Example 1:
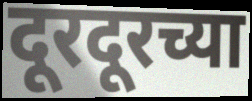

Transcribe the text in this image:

दूरदूरच्या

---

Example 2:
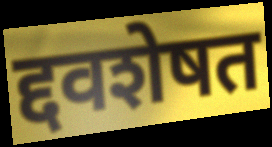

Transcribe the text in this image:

द्दवशेषत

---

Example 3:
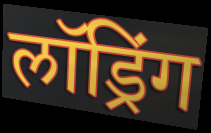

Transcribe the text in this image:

लॉड्रिंग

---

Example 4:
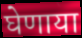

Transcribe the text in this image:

घेणाया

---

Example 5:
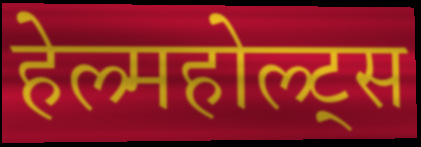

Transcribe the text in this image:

हेल्महोल्ट्स